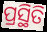
ପ୍ରସ୍ଥିତି